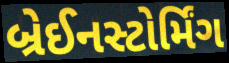
બ્રેઈનસ્ટોર્મિંગ